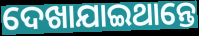
ଦେଖାଯାଇଥାନ୍ତେ